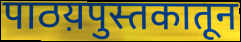
पाठय़पुस्तकातून